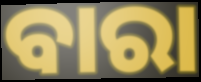
ବାରା